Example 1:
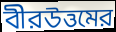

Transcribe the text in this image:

বীরউত্তমের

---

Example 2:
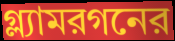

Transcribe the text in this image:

গ্ল্যামরগনের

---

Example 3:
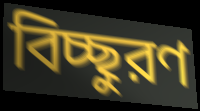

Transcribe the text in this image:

বিচ্ছুরণ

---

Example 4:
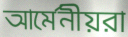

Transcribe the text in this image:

আর্মেনীয়রা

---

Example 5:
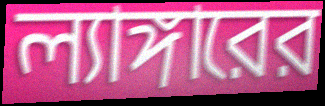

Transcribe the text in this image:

ল্যাঙ্গারের